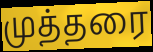
முத்தரை